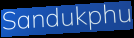
Sandukphu